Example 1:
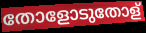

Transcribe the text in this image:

തോളോടുതോള്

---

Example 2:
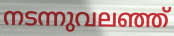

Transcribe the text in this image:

നടന്നുവലഞ്ഞ്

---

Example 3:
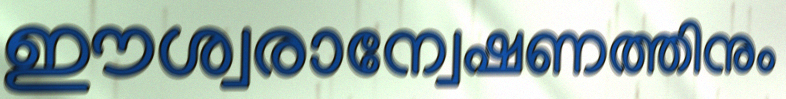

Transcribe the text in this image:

ഈശ്വരാന്വേഷണത്തിനും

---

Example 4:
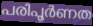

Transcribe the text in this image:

പരിപൂർണത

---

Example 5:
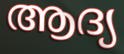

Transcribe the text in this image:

ആദ്യ